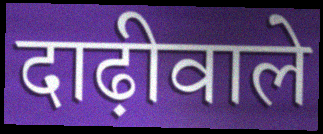
दाढ़ीवाले